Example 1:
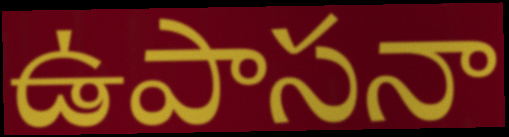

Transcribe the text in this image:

ఉపాసనా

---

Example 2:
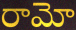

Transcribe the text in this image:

రామో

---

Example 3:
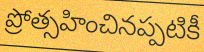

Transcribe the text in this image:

ప్రోత్సహించినప్పటికీ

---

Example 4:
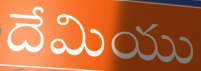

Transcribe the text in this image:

దేమియు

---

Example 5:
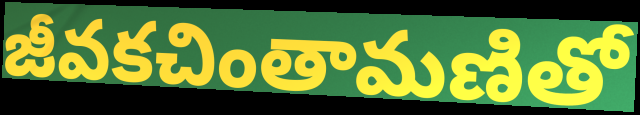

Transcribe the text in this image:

జీవకచింతామణితో